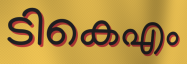
ടികെഎം